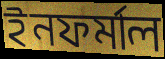
ইনফর্মাল